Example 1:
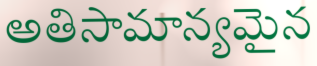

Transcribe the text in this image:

అతిసామాన్యమైన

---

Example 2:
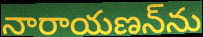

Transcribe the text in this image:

నారాయణన్‌ను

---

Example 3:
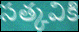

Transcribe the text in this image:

సత్కవికి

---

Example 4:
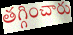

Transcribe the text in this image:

తగ్గించారు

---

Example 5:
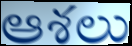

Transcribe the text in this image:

ఆశలు